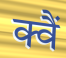
क्वैं